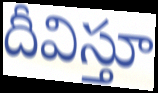
దీవిస్తూ